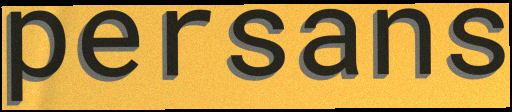
persans